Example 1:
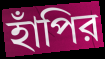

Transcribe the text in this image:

হাঁপির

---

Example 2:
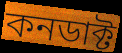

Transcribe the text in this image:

কনডাক্ট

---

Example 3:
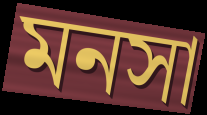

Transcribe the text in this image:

মনসা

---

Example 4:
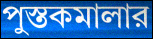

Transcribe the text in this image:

পুস্তকমালার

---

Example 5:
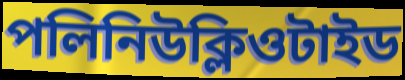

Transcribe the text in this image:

পলিনিউক্লিওটাইড